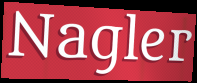
Nagler